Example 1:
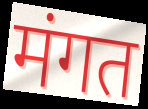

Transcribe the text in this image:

मंगत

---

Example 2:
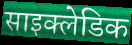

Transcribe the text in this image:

साइक्लेडिक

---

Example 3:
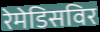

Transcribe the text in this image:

रेमेडिसविर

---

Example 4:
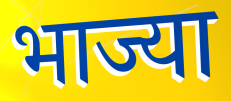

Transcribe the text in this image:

भाज्या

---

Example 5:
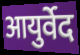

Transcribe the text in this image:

आयुर्वेद